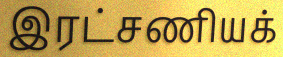
இரட்சணியக்